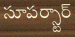
సూపర్స్టార్